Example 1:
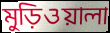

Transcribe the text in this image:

মুড়িওয়ালা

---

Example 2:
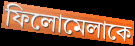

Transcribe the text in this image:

ফিলোমেলাকে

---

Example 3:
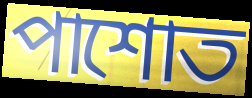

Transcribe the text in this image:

পাশোত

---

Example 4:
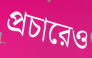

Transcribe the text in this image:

প্রচারেও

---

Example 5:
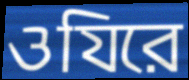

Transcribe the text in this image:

ওযিরে